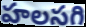
హలసగి